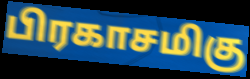
பிரகாசமிகு